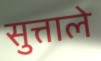
सुत्ताले